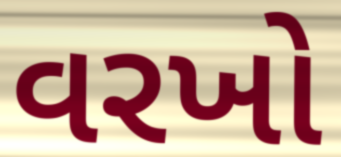
વરખો